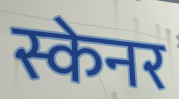
स्‍केनर